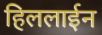
हिललाईन